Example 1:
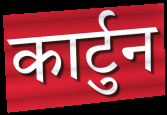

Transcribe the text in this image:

कार्टुन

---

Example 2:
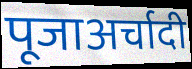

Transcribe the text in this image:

पूजाअर्चादी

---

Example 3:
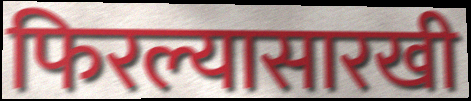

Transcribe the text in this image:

फिरल्यासारखी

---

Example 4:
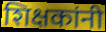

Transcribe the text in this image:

शिक्षकांनी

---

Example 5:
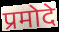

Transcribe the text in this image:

प्रमोदे